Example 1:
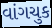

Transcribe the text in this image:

વાંગચુક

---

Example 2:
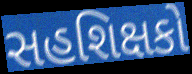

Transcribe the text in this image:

સહશિક્ષકો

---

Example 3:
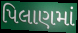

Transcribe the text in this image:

પિલાણમાં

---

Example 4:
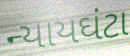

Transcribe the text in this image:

ન્યાયઘંટા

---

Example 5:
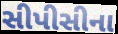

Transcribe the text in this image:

સીપીસીના